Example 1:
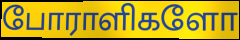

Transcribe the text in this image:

போராளிகளோ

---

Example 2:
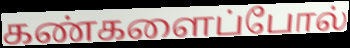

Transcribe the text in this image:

கண்களைப்போல்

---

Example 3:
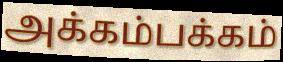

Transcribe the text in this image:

அக்கம்பக்கம்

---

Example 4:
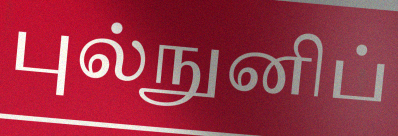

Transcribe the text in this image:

புல்நுனிப்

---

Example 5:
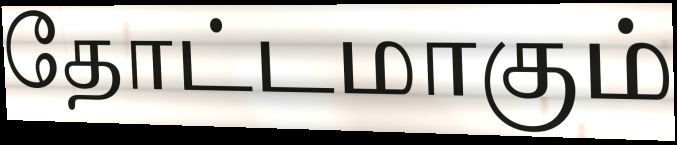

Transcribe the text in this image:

தோட்டமாகும்